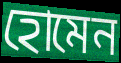
হোমেন